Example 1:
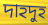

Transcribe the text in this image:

দাহদুহ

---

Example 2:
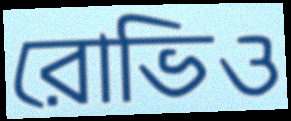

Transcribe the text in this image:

রোভিও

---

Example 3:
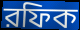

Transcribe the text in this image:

রফিক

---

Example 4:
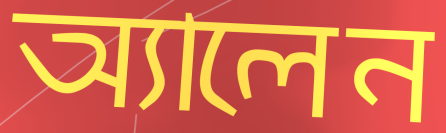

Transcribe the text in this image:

অ্যালেন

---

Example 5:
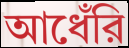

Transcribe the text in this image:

আধেঁরি